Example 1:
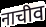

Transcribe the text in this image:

नाचीव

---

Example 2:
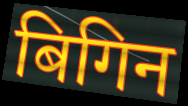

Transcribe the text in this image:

बिगिन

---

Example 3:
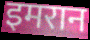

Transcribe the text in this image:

इमरान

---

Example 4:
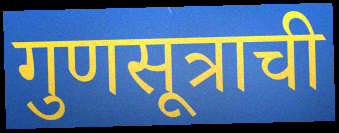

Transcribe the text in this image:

गुणसूत्राची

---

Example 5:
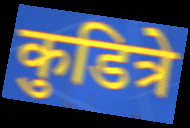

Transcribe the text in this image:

कुडित्रे